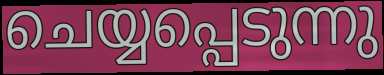
ചെയ്യപ്പെടുന്നു